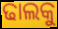
ଢାଲକୁ